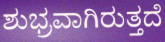
ಶುಭ್ರವಾಗಿರುತ್ತದೆ